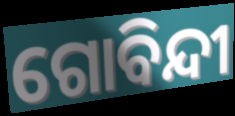
ଗୋବିନ୍ଦୀ